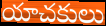
యాచకులు